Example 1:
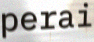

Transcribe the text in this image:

perai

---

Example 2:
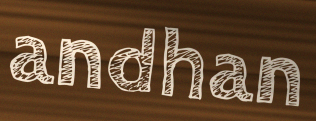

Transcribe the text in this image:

andhan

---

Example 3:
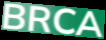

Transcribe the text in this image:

BRCA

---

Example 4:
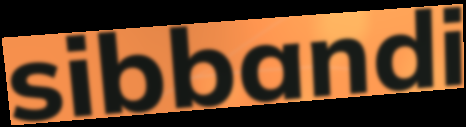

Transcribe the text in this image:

sibbandi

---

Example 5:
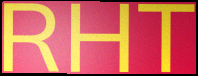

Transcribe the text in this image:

RHT